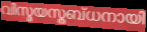
വിസ്മയസ്തബ്ധനായി